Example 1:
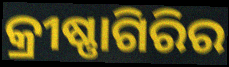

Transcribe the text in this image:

କ୍ରୀଷ୍ଣାଗିରିର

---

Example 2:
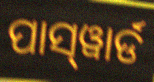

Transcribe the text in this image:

ପାସ୍‌ୱାର୍ଡ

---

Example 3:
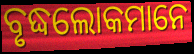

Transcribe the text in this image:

ବୃଦ୍ଧଲୋକମାନେ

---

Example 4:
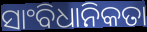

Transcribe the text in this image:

ସାଂବିଧାନିକତା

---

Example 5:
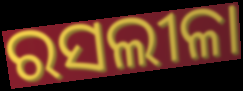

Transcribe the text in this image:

ରସଲୀଳା